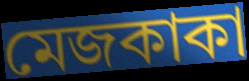
মেজকাকা